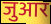
जुआर